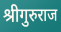
श्रीगुरुराज